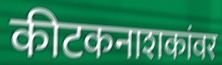
कीटकनाशकांवर